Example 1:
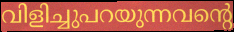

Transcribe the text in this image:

വിളിച്ചുപറയുന്നവന്റെ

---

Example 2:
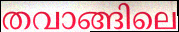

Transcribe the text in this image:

തവാങ്ങിലെ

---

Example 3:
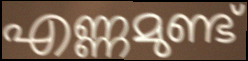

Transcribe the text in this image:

എണ്ണമുണ്ട്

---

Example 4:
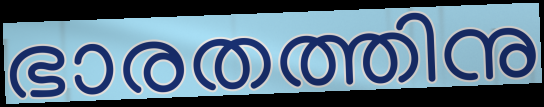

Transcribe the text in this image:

ഭാരതത്തിനു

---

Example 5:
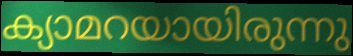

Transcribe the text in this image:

ക്യാമറയായിരുന്നു